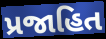
પ્રજાહિત